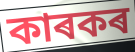
কাৰকৰ